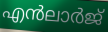
എൻലാർജ്